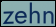
zehn